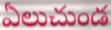
ఏలుచుండ